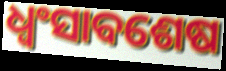
ଧ୍ଵଂସାବଶେଷ